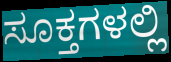
ಸೂಕ್ತಗಳಲ್ಲಿ